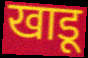
खाडू